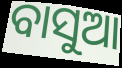
ବାସୁଆ